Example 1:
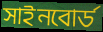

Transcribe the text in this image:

সাইনবোর্ড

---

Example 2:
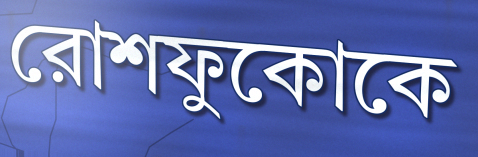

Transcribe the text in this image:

রোশফুকোকে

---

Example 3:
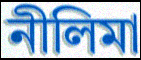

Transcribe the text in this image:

নীলিমা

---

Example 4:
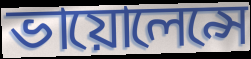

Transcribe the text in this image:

ভায়োলেন্সে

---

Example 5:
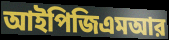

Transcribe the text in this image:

আইপিজিএমআর